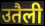
उतैली